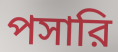
পসারি